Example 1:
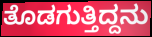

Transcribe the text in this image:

ತೊಡಗುತ್ತಿದ್ದನು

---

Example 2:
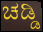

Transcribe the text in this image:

ಚಡ್ಡಿ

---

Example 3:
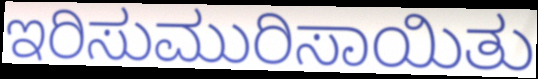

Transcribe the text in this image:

ಇರಿಸುಮುರಿಸಾಯಿತು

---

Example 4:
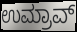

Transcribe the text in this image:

ಉಮ್ರಾವ್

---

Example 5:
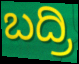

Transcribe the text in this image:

ಬದ್ರಿ